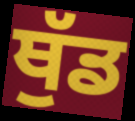
ਥੁੱਡ